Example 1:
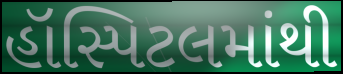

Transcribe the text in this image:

હૉસ્પિટલમાંથી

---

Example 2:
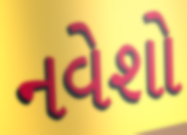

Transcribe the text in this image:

નવેશો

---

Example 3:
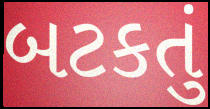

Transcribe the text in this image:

બટકતું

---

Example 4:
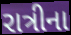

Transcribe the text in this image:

રાત્રીના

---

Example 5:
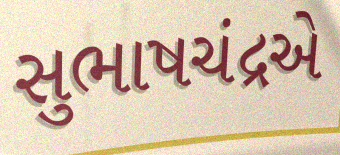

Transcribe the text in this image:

સુભાષચંદ્રએ